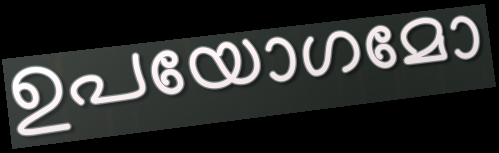
ഉപയോഗമോ